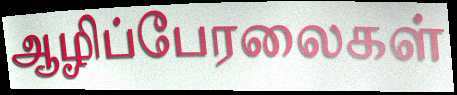
ஆழிப்பேரலைகள்